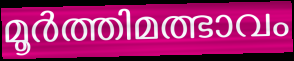
മൂർത്തിമത്ഭാവം